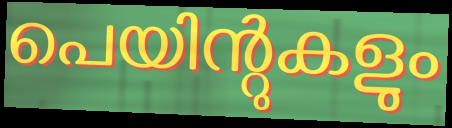
പെയിന്റുകളും